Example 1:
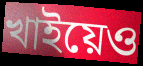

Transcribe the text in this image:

খাইয়েও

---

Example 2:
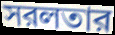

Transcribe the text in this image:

সরলতার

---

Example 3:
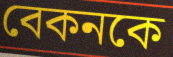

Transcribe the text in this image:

বেকনকে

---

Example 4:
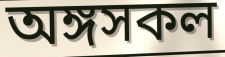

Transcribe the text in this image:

অঙ্গসকল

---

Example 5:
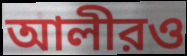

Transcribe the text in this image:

আলীরও